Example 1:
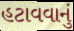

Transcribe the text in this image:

હટાવવાનું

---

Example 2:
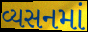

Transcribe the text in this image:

વ્યસનમાં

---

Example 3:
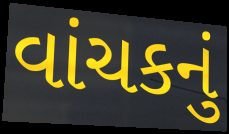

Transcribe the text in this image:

વાંચકનું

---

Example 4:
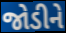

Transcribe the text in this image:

જોડીને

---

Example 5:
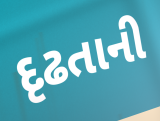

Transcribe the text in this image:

દૃઢતાની